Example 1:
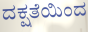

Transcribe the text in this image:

ದಕ್ಷತೆಯಿಂದ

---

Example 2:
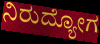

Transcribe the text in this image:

ನಿರುದ್ಯೋಗ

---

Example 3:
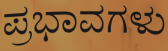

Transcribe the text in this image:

ಪ್ರಭಾವಗಳು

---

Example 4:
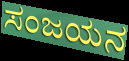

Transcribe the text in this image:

ಸಂಜಯನ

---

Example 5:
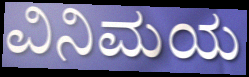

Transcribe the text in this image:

ವಿನಿಮಯ